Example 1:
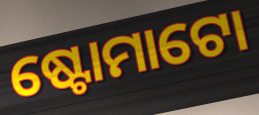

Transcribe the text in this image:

ଷ୍ଟୋମାଟୋ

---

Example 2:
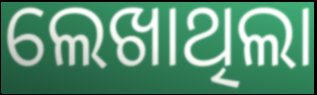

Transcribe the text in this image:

ଲେଖାଥିଲା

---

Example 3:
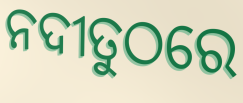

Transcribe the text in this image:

ନଦୀତୁଠରେ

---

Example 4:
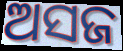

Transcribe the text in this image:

ଅସଜ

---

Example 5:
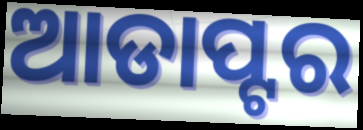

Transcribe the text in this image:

ଆଡାପ୍ଟର